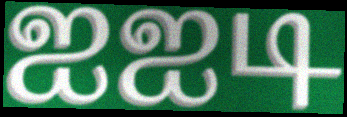
ஐஐடி